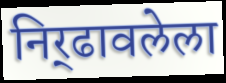
निर्ढावलेला